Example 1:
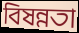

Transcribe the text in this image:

বিষন্নতা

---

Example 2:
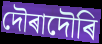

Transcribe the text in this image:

দৌৰাদৌৰি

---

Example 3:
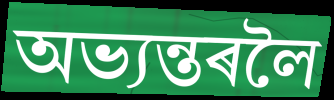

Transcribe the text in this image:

অভ্যন্তৰলৈ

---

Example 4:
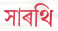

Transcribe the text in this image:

সাৰথি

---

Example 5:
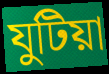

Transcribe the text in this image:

যুটিয়া